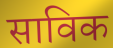
साविक